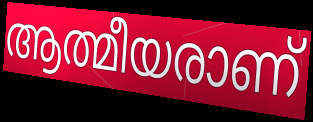
ആത്മീയരാണ്